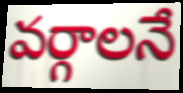
వర్గాలనే